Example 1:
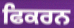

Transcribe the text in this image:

ਫਿਕਰਨ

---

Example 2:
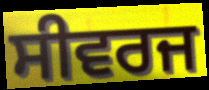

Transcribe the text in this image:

ਸੀਵਰਜ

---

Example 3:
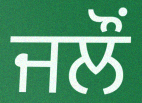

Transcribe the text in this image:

ਜਲੌਂ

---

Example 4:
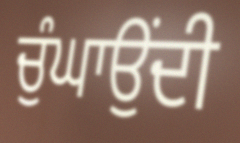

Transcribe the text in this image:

ਚੁੰਘਾਉਂਦੀ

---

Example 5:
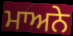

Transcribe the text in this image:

ਮਾਅਨੇ